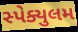
સ્પેક્યુલમ